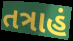
તત્રાહં